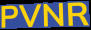
PVNR